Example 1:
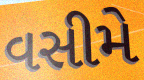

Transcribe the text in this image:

વસીમે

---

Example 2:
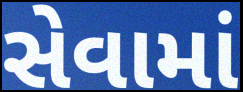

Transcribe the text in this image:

સેવામાં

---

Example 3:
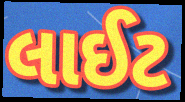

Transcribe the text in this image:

લાઈટ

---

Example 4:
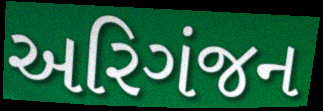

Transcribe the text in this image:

અરિગંજન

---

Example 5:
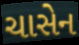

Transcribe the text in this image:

ચાસેન